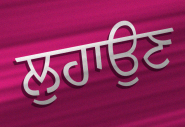
ਲੁਹਾਉਣ